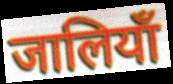
जालियाँ